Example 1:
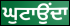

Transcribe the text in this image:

ਘੁਟਾਉਂਦਾ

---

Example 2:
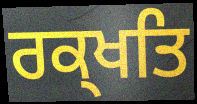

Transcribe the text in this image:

ਰਕ੍ਖਤਿ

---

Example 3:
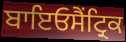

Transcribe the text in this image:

ਬਾਇਓਸੈਂਟ੍ਰਿਕ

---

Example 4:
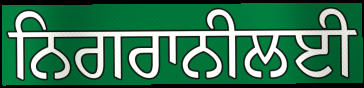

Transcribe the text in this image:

ਨਿਗਰਾਨੀਲਈ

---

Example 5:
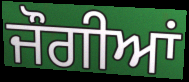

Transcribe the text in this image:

ਜੌਗੀਆਂ